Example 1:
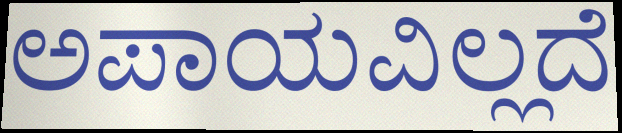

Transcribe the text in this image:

ಅಪಾಯವಿಲ್ಲದೆ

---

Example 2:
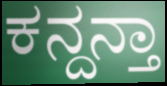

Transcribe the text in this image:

ಕನ್ದನ್ತಾ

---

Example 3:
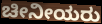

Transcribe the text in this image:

ಚೀನೀಯರು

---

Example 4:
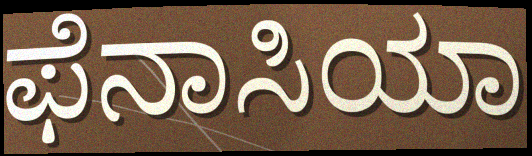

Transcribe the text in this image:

ಫೆನಾಸಿಯಾ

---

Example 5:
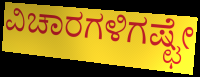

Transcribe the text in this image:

ವಿಚಾರಗಳಿಗಷ್ಟೇ